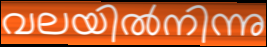
വലയിൽനിന്നു